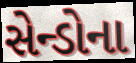
સેન્ડોના